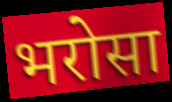
भरोसा